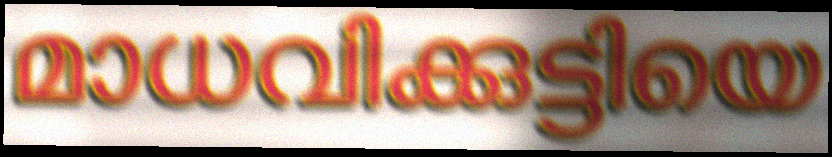
മാധവിക്കുട്ടിയെ